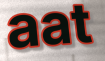
aat